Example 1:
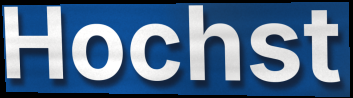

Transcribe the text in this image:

Hochst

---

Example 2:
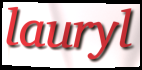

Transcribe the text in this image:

lauryl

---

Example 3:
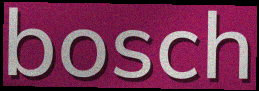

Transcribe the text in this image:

bosch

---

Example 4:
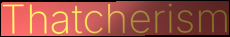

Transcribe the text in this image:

Thatcherism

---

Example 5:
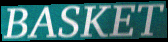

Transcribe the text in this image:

BASKET